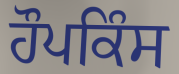
ਹੌਪਕਿੰਸ